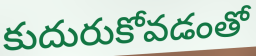
కుదురుకోవడంతో